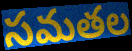
సమతల